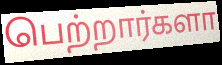
பெற்றார்களா